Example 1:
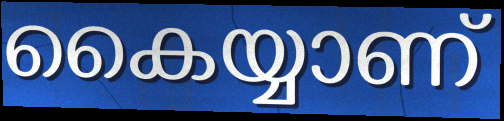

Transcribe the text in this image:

കൈയ്യാണ്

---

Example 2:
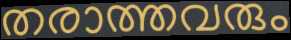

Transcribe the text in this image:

തരാത്തവരും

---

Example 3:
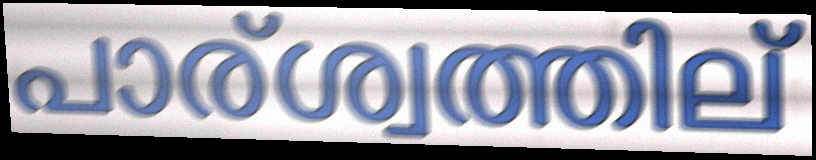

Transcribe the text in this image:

പാര്ശ്വത്തില്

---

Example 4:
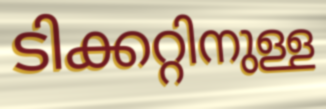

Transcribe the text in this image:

ടിക്കറ്റിനുള്ള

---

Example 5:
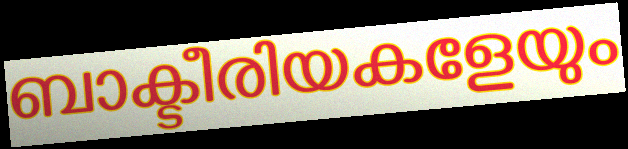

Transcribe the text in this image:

ബാക്ടീരിയകളേയും